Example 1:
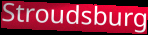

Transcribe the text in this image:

Stroudsburg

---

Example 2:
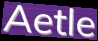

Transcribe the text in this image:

Aetle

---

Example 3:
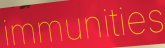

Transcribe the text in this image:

immunities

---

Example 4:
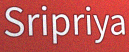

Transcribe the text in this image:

Sripriya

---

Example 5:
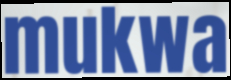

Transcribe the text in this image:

mukwa